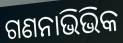
ଗଣନାଭିଭିକ